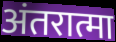
अंतरात्मा